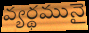
వ్యర్థమునై